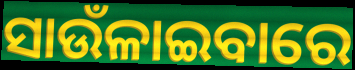
ସାଉଁଳାଇବାରେ